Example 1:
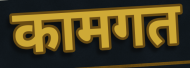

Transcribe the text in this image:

कामगत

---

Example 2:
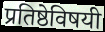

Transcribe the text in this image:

प्रतिष्ठेविषयी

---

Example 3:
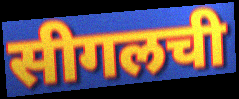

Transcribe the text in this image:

सीगलची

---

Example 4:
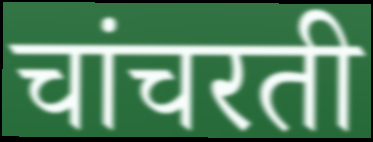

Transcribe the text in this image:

चांचरती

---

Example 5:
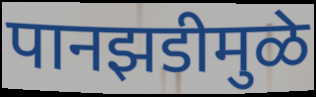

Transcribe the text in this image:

पानझडीमुळे